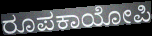
ರೂಪಕಾಯೋಪಿ